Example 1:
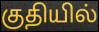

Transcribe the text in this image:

குதியில்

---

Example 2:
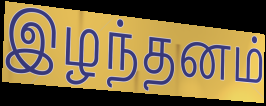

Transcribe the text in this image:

இழந்தனம்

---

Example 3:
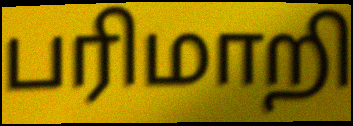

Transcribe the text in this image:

பரிமாறி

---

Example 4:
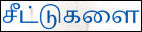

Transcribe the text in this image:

சீட்டுகளை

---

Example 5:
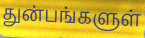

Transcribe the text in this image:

துன்பங்களுள்